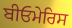
ਬੀਓਮੇਰਿਸ